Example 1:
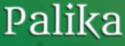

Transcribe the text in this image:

Palika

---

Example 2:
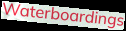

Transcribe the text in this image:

Waterboardings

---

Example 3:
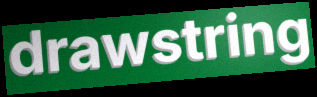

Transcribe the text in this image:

drawstring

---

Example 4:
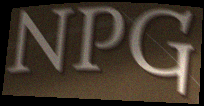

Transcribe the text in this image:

NPG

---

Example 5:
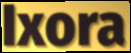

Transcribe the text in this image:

Ixora